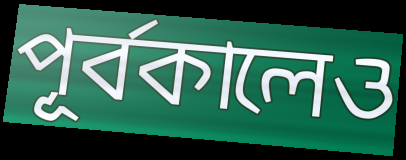
পূর্বকালেও